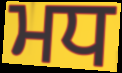
ਮਧ